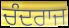
ਚੰਦਰਾਜ